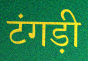
टंगड़ी